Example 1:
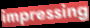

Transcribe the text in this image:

impressing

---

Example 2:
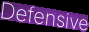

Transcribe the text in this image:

Defensive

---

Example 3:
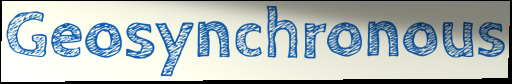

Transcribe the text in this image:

Geosynchronous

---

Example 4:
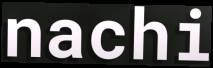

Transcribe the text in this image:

nachi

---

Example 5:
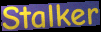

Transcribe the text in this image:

Stalker